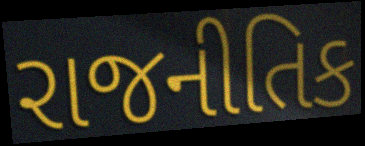
રાજનીતિક